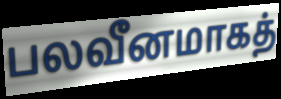
பலவீனமாகத்